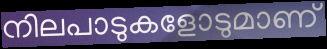
നിലപാടുകളോടുമാണ്